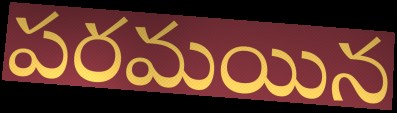
పరమయిన